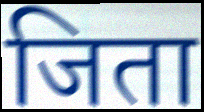
जिता